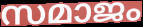
സമാജം